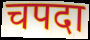
चपदा